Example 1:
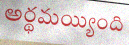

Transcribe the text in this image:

అర్థమయ్యింది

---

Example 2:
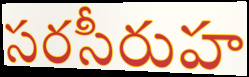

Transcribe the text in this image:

సరసీరుహ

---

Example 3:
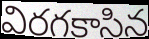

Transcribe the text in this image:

విరగకాసిన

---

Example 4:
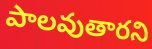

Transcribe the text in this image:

పాలవుతారని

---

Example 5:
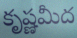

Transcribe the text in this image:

కృష్ణమీద